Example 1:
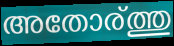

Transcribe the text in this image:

അതോര്ത്തു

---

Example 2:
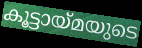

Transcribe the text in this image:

കൂട്ടായ്മയുടെ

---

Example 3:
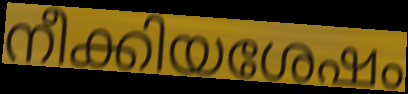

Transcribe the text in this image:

നീക്കിയശേഷം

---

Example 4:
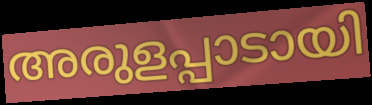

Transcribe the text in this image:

അരുളപ്പാടായി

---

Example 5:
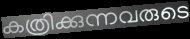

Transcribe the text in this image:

കത്രിക്കുന്നവരുടെ